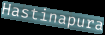
Hastinapura